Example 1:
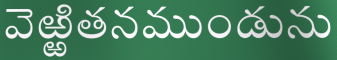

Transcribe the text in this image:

వెఱ్ఱితనముండును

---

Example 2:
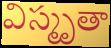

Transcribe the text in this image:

విస్మృతా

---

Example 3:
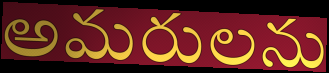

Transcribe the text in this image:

అమరులను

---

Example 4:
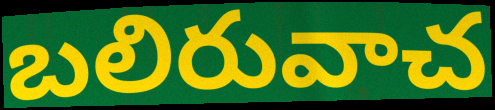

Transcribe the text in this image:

బలిరువాచ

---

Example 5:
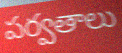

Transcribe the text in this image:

పర్వతాలు